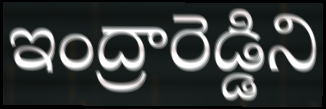
ఇంద్రారెడ్డిని